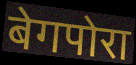
बेगपोरा